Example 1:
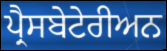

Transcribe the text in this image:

ਪ੍ਰੈਸਬੇਟੇਰੀਅਨ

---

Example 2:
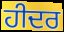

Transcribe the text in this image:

ਹੀਦਰ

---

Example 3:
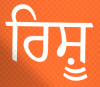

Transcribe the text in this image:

ਰਿਸ਼ੂ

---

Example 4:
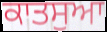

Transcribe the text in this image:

ਕਾਤਸੁਆ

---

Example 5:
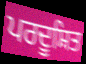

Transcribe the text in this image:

ਪਰਦੂਸ਼ਿਤ